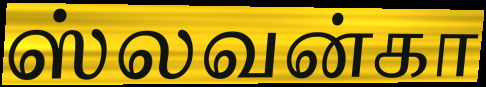
ஸ்லவன்கா